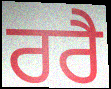
ਰਰੈ